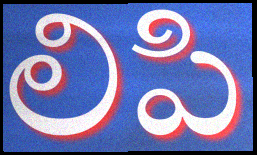
లిపి